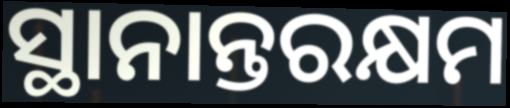
ସ୍ଥାନାନ୍ତରକ୍ଷମ